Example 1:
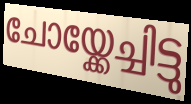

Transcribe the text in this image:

ചോയ്ക്കേച്ചിട്ടു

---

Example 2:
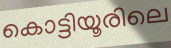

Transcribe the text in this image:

കൊട്ടിയൂരിലെ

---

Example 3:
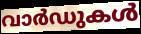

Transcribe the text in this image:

വാർഡുകൾ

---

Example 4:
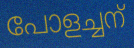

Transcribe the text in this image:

പോളച്ചന്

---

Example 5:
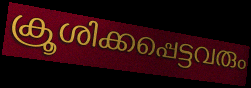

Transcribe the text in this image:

ക്രൂശിക്കപ്പെട്ടവരും